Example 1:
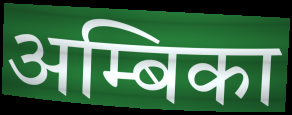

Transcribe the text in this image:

अम्बिका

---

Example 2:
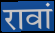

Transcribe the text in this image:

रावां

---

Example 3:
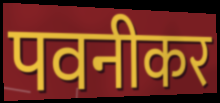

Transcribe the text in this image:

पवनीकर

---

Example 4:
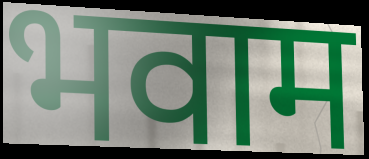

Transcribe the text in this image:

भवाम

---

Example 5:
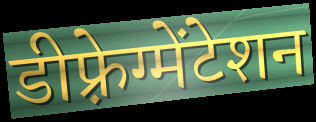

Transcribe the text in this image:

डीफ़्रेग्मेंटेशन